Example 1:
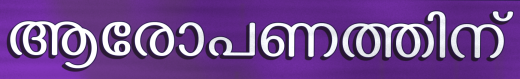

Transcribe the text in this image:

ആരോപണത്തിന്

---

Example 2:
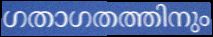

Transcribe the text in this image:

ഗതാഗതത്തിനും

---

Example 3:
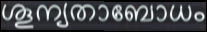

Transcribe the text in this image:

ശൂന്യതാബോധം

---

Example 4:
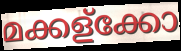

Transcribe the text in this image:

മക്കള്ക്കോ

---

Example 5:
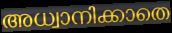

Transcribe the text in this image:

അധ്വാനിക്കാതെ